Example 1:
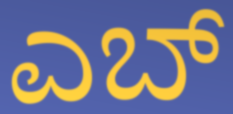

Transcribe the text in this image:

ಎಬ್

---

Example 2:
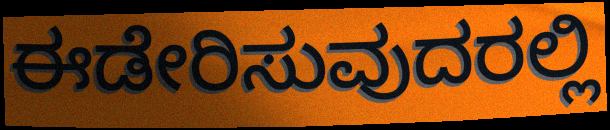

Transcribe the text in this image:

ಈಡೇರಿಸುವುದರಲ್ಲಿ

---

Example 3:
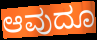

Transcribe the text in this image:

ಆವುದೂ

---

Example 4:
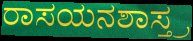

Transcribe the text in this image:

ರಾಸಯನಶಾಸ್ತ್ರ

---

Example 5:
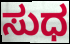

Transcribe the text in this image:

ಸುಧ